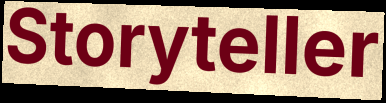
Storyteller